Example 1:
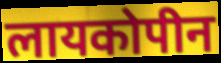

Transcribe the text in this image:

लायकोपीन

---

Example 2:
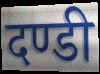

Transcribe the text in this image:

दण्डी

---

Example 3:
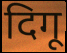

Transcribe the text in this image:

दिगू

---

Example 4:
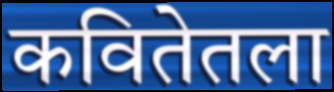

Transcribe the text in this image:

कवितेतला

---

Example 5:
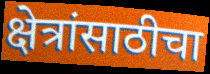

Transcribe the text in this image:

क्षेत्रांसाठीचा